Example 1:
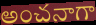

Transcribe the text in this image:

అంచనాగా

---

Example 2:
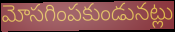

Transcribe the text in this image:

మోసగింపకుండునట్లు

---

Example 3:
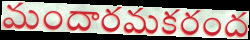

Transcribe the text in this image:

మందారమకరంద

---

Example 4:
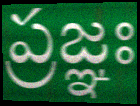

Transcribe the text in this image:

ప్రజ్ఞః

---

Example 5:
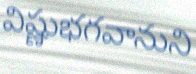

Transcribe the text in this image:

విష్ణుభగవానుని